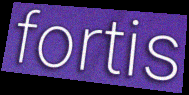
fortis